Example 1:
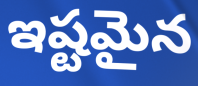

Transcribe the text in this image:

ఇష్టమైన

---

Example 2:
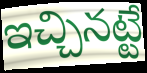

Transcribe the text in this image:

ఇచ్చినట్టే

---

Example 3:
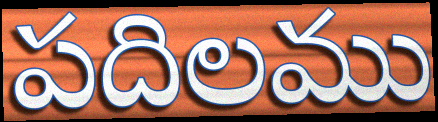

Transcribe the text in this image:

పదిలము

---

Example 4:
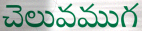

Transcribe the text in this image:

చెలువముగ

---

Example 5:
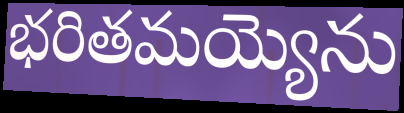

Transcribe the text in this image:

భరితమయ్యెను